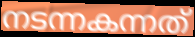
നടന്നകന്നത്